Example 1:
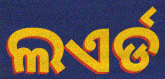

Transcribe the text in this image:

ଲଏର୍ଡ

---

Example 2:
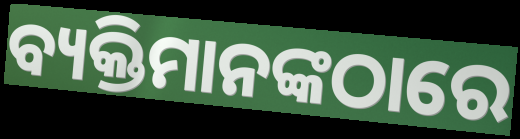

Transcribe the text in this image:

ବ୍ୟକ୍ତିମାନଙ୍କଠାରେ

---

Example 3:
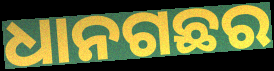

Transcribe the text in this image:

ଧାନଗଛର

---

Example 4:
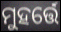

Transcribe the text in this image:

ମୁହର୍ତ୍ତେ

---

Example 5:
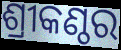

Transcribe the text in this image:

ଶ୍ରୀକଣ୍ଠର